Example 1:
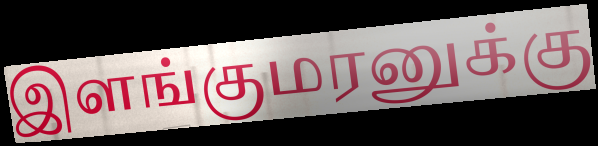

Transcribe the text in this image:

இளங்குமரனுக்கு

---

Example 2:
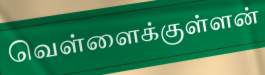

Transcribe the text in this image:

வெள்ளைக்குள்ளன்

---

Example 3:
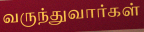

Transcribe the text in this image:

வருந்துவார்கள்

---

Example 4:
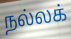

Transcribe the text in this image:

நல்லக்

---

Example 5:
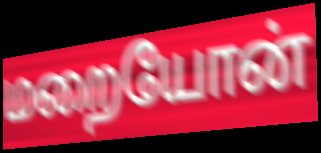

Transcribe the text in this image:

மறையோன்